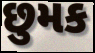
છુમક